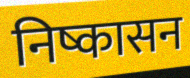
निष्कासन